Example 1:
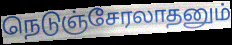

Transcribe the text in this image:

நெடுஞ்சேரலாதனும்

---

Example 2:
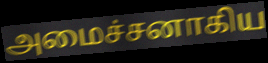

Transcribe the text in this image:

அமைச்சனாகிய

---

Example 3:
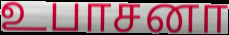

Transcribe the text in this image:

உபாசனா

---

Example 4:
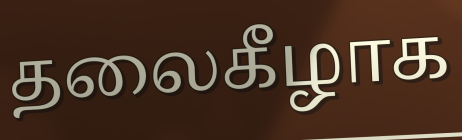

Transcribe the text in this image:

தலைகீழாக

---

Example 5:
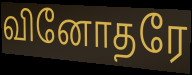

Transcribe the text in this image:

வினோதரே